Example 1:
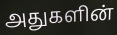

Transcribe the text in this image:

அதுகளின்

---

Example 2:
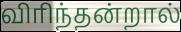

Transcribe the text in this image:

விரிந்தன்றால்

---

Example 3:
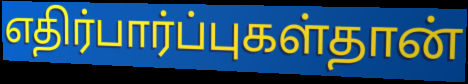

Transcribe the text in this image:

எதிர்பார்ப்புகள்தான்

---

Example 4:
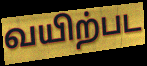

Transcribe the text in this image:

வயிற்பட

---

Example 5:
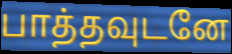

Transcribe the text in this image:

பாத்தவுடனே